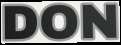
DON